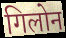
गिलोन